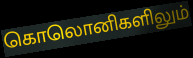
கொலொனிகளிலும்